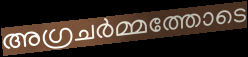
അഗ്രചർമ്മത്തോടെ